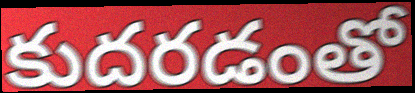
కుదరడంతో